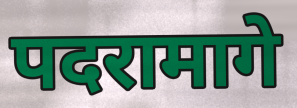
पदरामागे